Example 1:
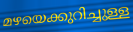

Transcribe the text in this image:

മഴയെക്കുറിച്ചുള്ള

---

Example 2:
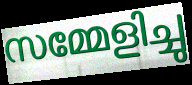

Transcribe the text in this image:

സമ്മേളിച്ചു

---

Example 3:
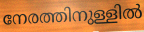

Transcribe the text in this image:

നേരത്തിനുള്ളിൽ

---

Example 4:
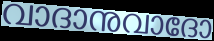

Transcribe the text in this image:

വാദാനുവാദോ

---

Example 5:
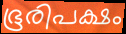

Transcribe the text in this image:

ഭൂരിപക്ഷം